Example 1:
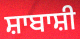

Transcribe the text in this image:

ਸ਼ਾਬਾਸ਼ੀ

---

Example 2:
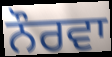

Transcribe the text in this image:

ਨੌਰਵਾ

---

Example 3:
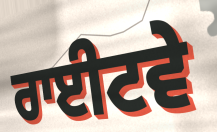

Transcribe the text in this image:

ਰਾਈਟਵੇ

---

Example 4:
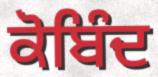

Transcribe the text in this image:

ਕੋਬਿੰਦ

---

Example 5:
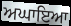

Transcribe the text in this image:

ਅਘਾਇਆ